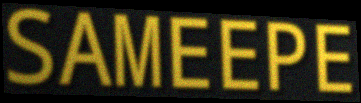
SAMEEPE